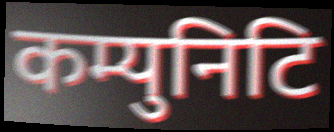
कम्युनिटि